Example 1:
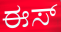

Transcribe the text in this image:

ಈಸ್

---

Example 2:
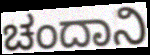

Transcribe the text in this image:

ಚಂದಾನಿ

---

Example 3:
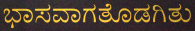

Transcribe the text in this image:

ಭಾಸವಾಗತೊಡಗಿತು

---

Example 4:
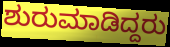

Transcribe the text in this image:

ಶುರುಮಾಡಿದ್ದರು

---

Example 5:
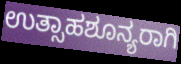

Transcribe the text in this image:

ಉತ್ಸಾಹಶೂನ್ಯರಾಗಿ